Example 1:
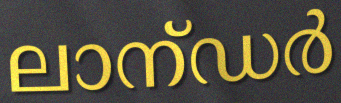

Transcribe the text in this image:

ലാന്ഡർ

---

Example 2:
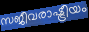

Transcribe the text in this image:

സജീവരാഷ്ട്രീയം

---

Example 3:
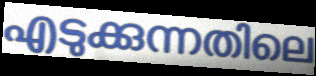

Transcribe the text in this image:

എടുക്കുന്നതിലെ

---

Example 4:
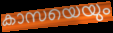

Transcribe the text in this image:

കാസയെയും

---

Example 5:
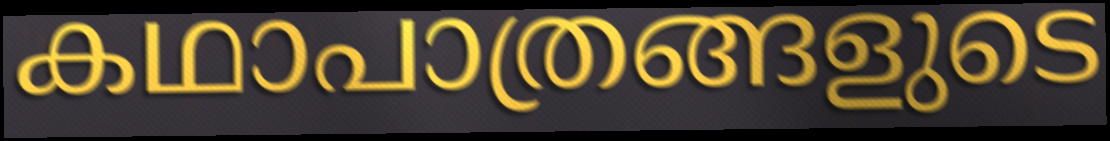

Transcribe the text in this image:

കഥാപാത്രങ്ങളുടെ